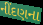
નીંદણના